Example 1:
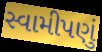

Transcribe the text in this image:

સ્વામીપણું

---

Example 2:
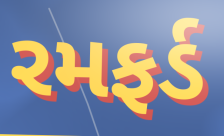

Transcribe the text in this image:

રમફર્ડ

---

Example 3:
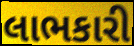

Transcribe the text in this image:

લાભકારી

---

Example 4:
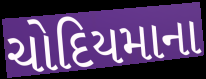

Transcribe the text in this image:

ચોદિયમાના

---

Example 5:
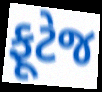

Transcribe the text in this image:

ફૂટેજ